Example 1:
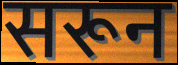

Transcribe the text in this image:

सरून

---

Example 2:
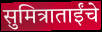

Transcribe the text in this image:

सुमित्राताईंचे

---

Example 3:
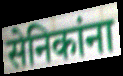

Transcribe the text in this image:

सेनिकांना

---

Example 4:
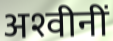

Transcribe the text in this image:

अश्वीनीं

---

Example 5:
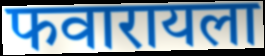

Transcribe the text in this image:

फवारायला